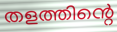
തളത്തിന്റെ